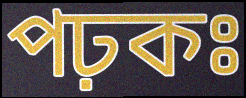
পঢ়কঃ